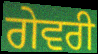
ਗੇਵਰੀ